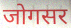
जोगसर